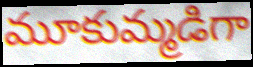
మూకుమ్మడిగా